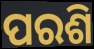
ପରଶି